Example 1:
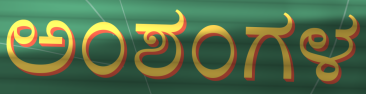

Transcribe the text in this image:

ಅಂಶಂಗಳ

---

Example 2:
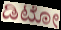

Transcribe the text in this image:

ಡಿಟೋ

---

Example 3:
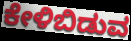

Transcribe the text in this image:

ಕೇಳಿಬಿಡುವ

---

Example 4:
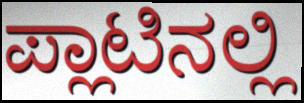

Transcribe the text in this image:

ಪ್ಲಾಟಿನಲ್ಲಿ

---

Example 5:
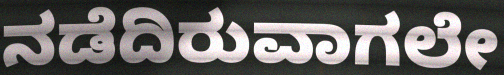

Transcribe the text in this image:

ನಡೆದಿರುವಾಗಲೇ